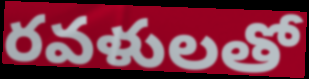
రవళులతో